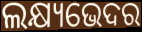
ଲକ୍ଷ୍ୟଭେଦର